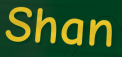
Shan